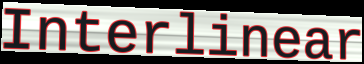
Interlinear